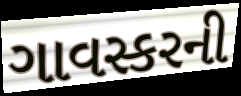
ગાવસ્કરની